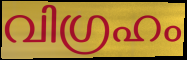
വിഗ്രഹം